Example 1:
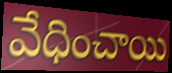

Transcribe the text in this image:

వేధించాయి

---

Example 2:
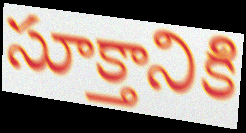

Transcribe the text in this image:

సూక్తానికి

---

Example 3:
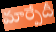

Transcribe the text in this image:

మార్పేదీ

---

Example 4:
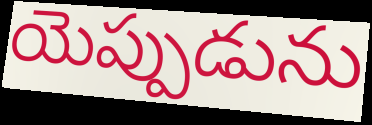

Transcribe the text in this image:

యెప్పుడును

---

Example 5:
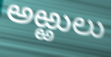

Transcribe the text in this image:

అఱ్ఱులు